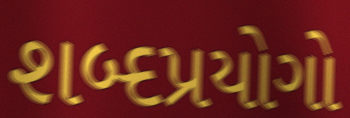
શબ્દપ્રયોગો